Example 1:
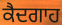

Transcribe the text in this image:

ਕੈਦਗਾਹ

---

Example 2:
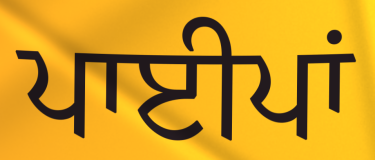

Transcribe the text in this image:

ਪਾਈਪਾਂ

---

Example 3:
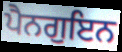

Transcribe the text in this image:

ਪੈਨਗੁਇਨ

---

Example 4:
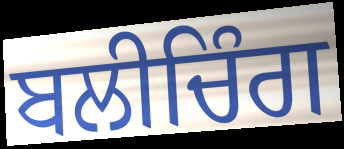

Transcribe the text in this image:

ਬਲੀਚਿੰਗ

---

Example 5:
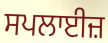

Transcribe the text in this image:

ਸਪਲਾਈਜ਼